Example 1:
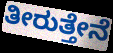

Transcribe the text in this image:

ತೀರುತ್ತೇನೆ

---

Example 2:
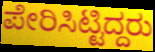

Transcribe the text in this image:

ಪೇರಿಸಿಟ್ಟಿದ್ದರು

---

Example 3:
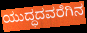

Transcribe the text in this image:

ಯುದ್ಧದವರೆಗಿನ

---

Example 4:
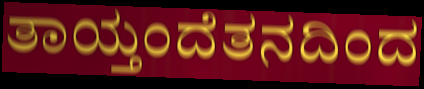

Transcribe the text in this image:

ತಾಯ್ತಂದೆತನದಿಂದ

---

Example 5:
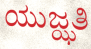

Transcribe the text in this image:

ಯುಜ್ಝತಿ